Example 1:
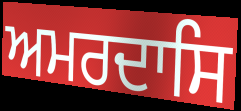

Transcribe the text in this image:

ਅਮਰਦਾਸਿ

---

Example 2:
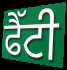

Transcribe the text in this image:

ਫੈੱਟੀ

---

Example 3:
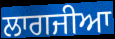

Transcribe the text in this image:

ਲਾਗਜੀਆ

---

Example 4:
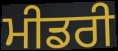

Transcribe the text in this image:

ਮੀਡਰੀ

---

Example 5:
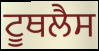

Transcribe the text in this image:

ਟੂਥਲੈਸ